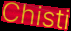
Chisti